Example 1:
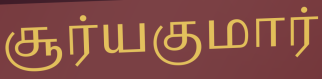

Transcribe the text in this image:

சூர்யகுமார்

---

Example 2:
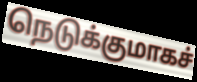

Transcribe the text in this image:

நெடுக்குமாகச்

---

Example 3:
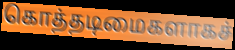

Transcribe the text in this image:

கொத்தடிமைகளாகச்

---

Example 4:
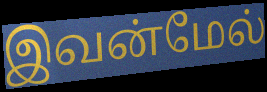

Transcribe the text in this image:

இவன்மேல்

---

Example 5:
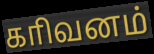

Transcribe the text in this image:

கரிவனம்